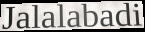
Jalalabadi